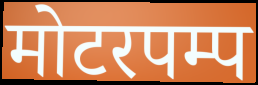
मोटरपम्प